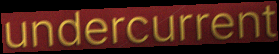
undercurrent